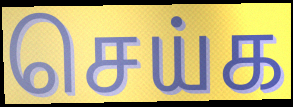
செய்க